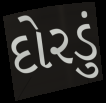
દોરડું